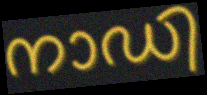
നാഡി